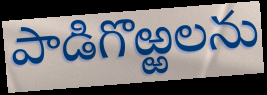
పాడిగొఱ్ఱలను